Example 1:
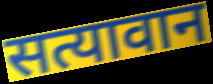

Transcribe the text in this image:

सत्यावान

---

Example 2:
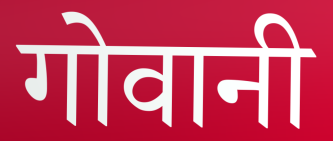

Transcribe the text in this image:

गोवानी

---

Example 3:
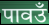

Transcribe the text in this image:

पावउँ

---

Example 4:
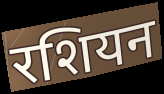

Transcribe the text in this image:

रशियन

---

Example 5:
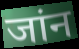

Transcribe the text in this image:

जांन